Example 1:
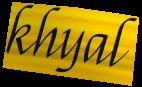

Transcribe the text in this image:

khyal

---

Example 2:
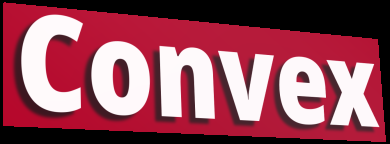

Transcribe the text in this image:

Convex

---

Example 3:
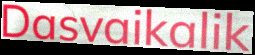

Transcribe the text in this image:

Dasvaikalik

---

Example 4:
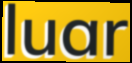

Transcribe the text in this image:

luar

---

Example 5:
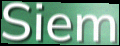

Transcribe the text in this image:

Siem